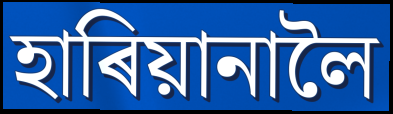
হাৰিয়ানালৈ